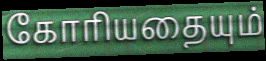
கோரியதையும்